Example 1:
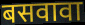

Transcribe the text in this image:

बसवावा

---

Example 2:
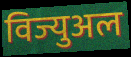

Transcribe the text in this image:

विज्युअल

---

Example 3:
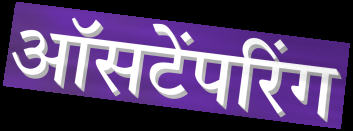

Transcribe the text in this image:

ऑसटेंपरिंग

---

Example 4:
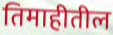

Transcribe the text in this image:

तिमाहीतील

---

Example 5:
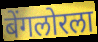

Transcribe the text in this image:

बेंगलोरला